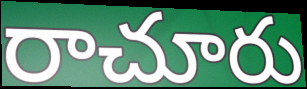
రాచూరు